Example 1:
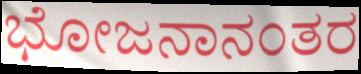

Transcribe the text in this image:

ಭೋಜನಾನಂತರ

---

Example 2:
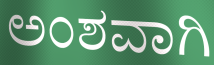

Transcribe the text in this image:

ಅಂಶವಾಗಿ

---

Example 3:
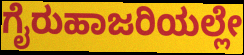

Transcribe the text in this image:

ಗೈರುಹಾಜರಿಯಲ್ಲೇ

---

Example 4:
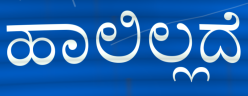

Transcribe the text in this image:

ಹಾಲಿಲ್ಲದೆ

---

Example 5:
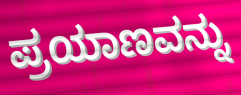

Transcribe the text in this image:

ಪ್ರಯಾಣವನ್ನು